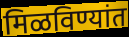
मिळविण्यांत